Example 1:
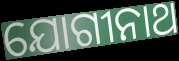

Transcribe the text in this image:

ଯୋଗୀନାଥ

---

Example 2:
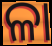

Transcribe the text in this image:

ଳା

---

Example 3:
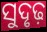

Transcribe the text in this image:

ସୁଦୃଢ଼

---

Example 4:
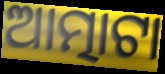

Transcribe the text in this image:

ଆତ୍ମାଟା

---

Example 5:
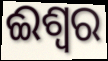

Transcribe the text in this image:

ଈଶ୍ୱର